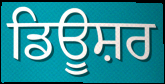
ਡਿਊਸ਼ਰ